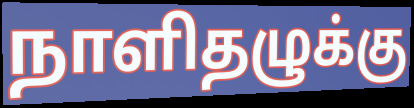
நாளிதழுக்கு